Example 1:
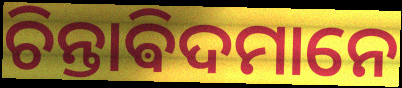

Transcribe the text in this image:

ଚିନ୍ତାଵିଦମାନେ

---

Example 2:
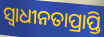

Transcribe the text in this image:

ସ୍ୱାଧୀନତାପ୍ରାପ୍ତି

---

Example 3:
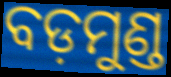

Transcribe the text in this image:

ବଡ଼ମୁଣ୍ଡ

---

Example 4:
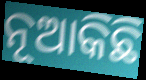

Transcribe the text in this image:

ନୂଆକିଛି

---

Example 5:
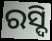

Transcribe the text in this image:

ରସ୍ଦି